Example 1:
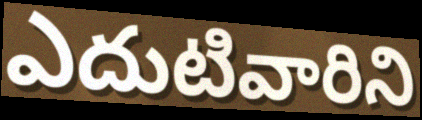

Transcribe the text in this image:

ఎదుటివారిని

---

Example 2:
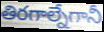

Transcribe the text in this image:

తిరగాల్నేగానీ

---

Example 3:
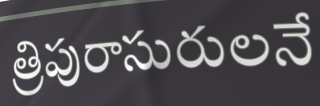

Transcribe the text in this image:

త్రిపురాసురులనే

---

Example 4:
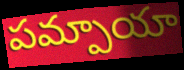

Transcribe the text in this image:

పమ్పాయా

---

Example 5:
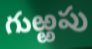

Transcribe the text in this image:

గుఱ్ఱపు